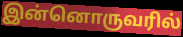
இன்னொருவரில்